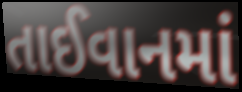
તાઈવાનમાં